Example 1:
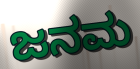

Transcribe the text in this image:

ಜನಮ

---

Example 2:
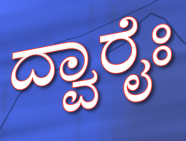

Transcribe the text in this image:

ದ್ವಾರೈಃ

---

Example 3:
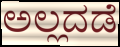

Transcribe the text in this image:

ಅಲ್ಲದಡೆ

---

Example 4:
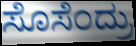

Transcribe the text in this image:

ಸೊಸೆಂದ್ರು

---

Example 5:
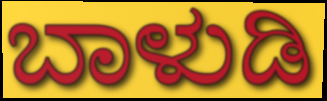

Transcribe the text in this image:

ಬಾಳುಡಿ